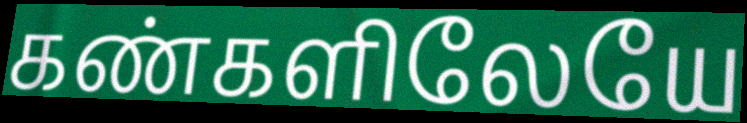
கண்களிலேயே